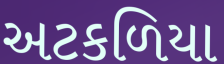
અટકળિયા